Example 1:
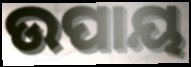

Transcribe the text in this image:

ଉପାୟ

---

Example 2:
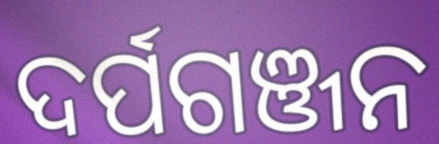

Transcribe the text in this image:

ଦର୍ପଗଞ୍ଜନ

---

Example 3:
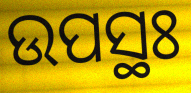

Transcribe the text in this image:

ଉପସ୍ଥଃ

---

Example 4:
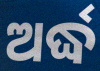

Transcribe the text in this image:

ଅର୍ଦ୍ଧ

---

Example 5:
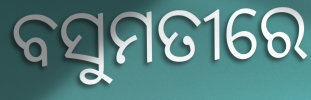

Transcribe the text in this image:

ବସୁମତୀରେ